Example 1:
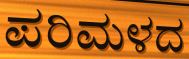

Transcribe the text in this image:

ಪರಿಮಳದ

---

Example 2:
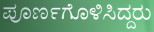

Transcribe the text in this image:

ಪೂರ್ಣಗೊಳಿಸಿದ್ದರು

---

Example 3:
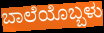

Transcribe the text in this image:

ಬಾಲೆಯೊಬ್ಬಳು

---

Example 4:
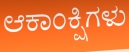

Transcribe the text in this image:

ಆಕಾಂಕ್ಷಿಗಳು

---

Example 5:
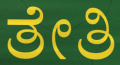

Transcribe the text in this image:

ತೇತಿ